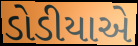
ડોડીયાએ